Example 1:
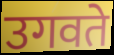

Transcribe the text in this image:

उगवते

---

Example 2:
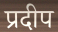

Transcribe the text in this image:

प्रदीप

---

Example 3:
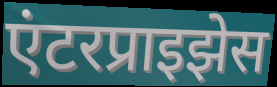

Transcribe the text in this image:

एंटरप्राइझेस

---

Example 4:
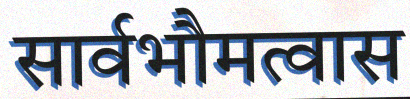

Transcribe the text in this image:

सार्वभौमत्वास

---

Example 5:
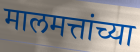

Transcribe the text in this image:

मालमत्तांच्या